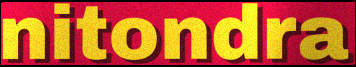
nitondra